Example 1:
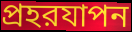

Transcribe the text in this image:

প্রহরযাপন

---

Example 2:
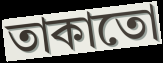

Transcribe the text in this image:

তাকাতো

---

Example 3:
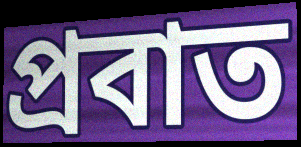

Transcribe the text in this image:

প্রবাত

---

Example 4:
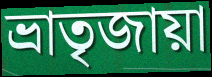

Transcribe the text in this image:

ভ্রাতৃজায়া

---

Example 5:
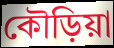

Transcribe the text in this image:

কৌড়িয়া